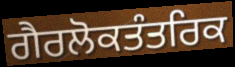
ਗੈਰਲੋਕਤੰਤਰਿਕ